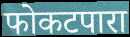
फोकटपारा